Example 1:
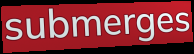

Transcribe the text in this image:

submerges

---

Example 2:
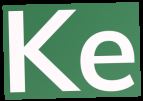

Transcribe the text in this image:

Ke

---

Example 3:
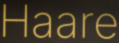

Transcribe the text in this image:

Haare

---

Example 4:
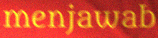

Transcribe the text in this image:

menjawab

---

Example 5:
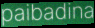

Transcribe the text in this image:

paibadina